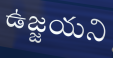
ఉజ్జయని